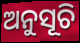
ଅନୁସୂଚି